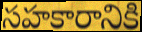
సహకారానికి